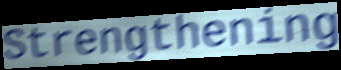
Strengthening